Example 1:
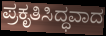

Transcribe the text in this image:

ಪ್ರಕೃತಿಸಿದ್ಧವಾದ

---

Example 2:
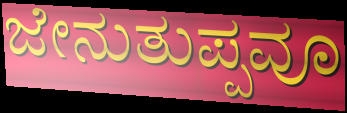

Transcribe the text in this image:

ಜೇನುತುಪ್ಪವೂ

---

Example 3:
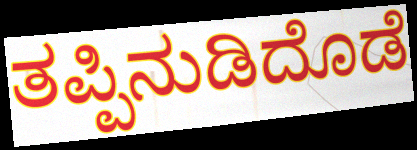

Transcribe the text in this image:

ತಪ್ಪಿನುಡಿದೊಡೆ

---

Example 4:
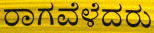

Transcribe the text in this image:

ರಾಗವೆಳೆದರು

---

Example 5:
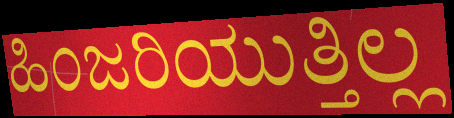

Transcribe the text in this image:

ಹಿಂಜರಿಯುತ್ತಿಲ್ಲ